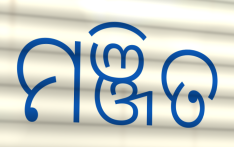
ମଞ୍ଜିତ